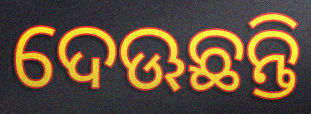
ଦେଊଛନ୍ତି